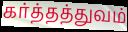
கர்த்தத்துவம்